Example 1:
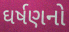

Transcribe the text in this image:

ઘર્ષણનો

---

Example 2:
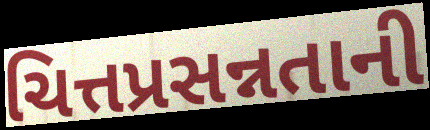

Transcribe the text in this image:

ચિત્તપ્રસન્નતાની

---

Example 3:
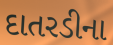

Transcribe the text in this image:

દાતરડીના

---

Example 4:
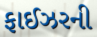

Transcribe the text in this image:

ફાઈઝરની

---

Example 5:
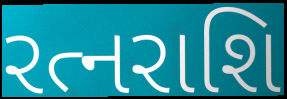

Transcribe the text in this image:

રત્નરાશિ